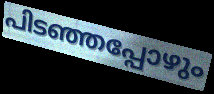
പിടഞ്ഞപ്പോഴും